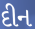
દીન